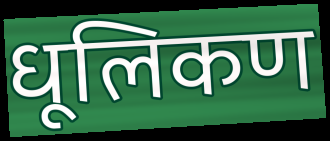
धूलिकण